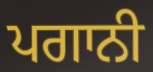
ਪਗਾਨੀ